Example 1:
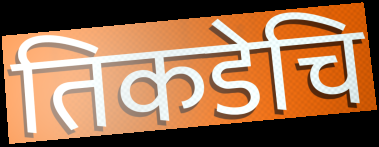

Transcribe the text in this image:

तिकडेचि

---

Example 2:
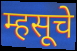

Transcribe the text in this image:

म्हसूचे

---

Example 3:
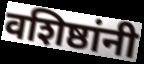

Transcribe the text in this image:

वशिष्ठांनी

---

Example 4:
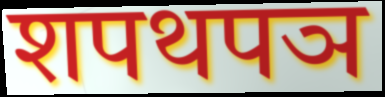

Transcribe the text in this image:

शपथपञ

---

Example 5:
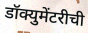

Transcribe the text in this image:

डॉक्युमेंटरीची